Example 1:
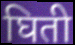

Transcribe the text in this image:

घिती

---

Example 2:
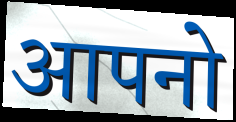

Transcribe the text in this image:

आपनो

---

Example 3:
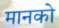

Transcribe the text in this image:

मानको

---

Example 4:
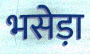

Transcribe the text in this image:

भसेड़ा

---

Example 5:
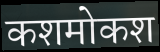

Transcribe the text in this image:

कशमोकश